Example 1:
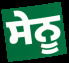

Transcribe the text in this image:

ਸੇਨੂ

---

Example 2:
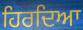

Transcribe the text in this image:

ਹਿਰਦਿਆ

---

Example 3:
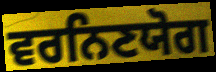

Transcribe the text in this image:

ਵਰਨਿਣਯੋਗ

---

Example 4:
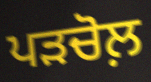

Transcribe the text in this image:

ਪੜਚੋਲ਼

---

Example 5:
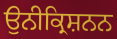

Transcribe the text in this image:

ਉਨੀਕ੍ਰਿਸ਼ਨਨ